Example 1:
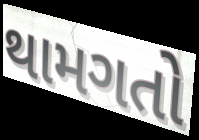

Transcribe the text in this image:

થામગતો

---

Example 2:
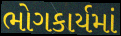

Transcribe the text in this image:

ભોગકાર્યમાં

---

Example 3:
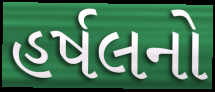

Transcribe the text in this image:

હર્ષલનો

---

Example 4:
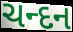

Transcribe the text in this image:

ચન્દન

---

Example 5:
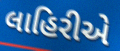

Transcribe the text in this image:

લાહિરીએ